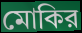
মোকির